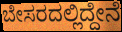
ಬೇಸರದಲ್ಲಿದ್ದೇನೆ